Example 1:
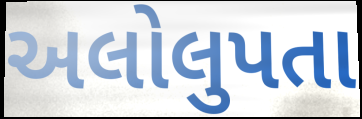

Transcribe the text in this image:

અલોલુપતા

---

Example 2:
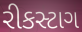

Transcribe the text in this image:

રીકસ્ટાગ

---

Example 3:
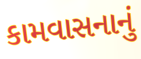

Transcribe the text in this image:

કામવાસનાનું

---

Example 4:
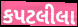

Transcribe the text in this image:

કપટલીલા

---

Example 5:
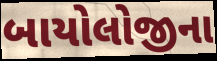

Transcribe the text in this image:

બાયોલોજીના